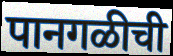
पानगळीची